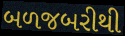
બળજબરીથી